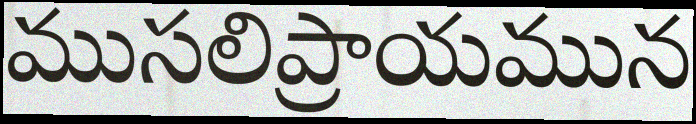
ముసలిప్రాయమున